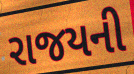
રાજયની